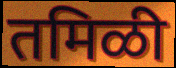
तमिळी